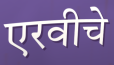
एरवीचे